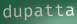
dupatta